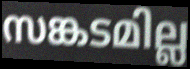
സങ്കടമില്ല